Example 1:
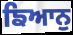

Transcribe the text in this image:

ਙਿਆਨੁ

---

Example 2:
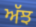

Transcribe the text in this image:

ਅੱਝ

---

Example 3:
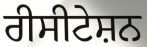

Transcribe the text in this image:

ਰੀਸੀਟੇਸ਼ਨ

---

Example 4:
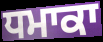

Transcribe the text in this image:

ਧਮਾਕਾ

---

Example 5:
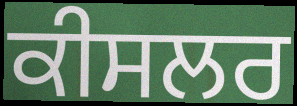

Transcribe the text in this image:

ਕੀਸਲਰ